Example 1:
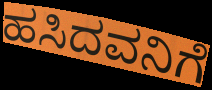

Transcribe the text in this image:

ಹಸಿದವನಿಗೆ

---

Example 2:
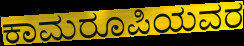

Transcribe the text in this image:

ಕಾಮರೂಪಿಯವರ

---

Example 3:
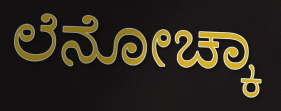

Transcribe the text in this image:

ಲೆನೋಚ್ಕಾ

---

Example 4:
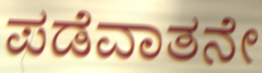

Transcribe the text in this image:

ಪಡೆವಾತನೇ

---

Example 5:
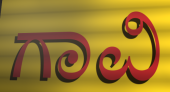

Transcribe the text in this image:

ಗಾವಿ